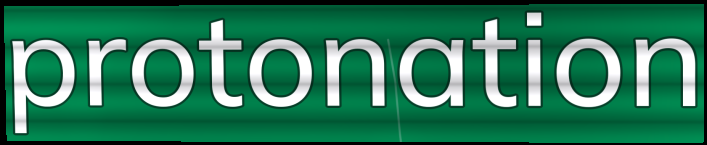
protonation